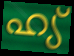
ഹ്യ്